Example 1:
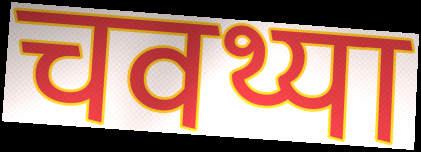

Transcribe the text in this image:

चवथ्या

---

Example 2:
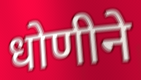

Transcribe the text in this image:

धोणीने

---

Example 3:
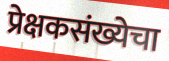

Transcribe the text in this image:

प्रेक्षकसंख्येचा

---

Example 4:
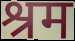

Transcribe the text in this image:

श्रम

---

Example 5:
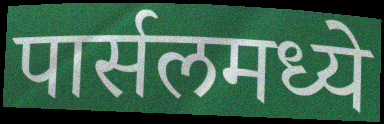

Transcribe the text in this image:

पार्सलमध्ये